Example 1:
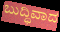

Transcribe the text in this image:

ಬುದ್ಧಿವಾದ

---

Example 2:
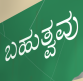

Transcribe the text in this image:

ಬಹುತ್ವವು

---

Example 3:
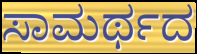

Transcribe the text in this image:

ಸಾಮರ್ಥದ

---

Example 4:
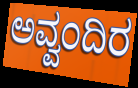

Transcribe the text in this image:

ಅವ್ವಂದಿರ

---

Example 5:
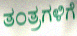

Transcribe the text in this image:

ತಂತ್ರಗಳಿಗೆ